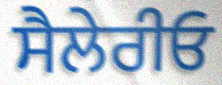
ਸੈਲੇਰੀਓ